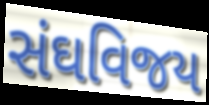
સંઘવિજય